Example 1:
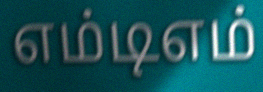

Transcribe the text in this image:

எம்டிஎம்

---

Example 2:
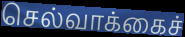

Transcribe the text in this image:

செல்வாக்கைச்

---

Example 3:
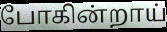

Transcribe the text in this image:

போகின்றாய்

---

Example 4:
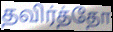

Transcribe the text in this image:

தவிர்த்தோ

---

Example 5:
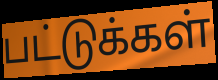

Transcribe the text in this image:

பட்டுக்கள்